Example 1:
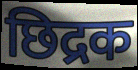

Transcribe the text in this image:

छिद्रक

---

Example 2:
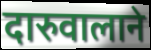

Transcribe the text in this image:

दारुवालाने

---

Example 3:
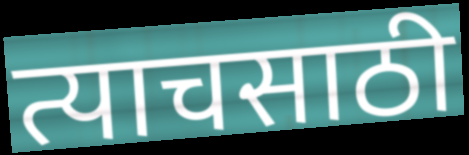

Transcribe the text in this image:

त्याचसाठी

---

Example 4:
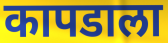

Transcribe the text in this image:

कापडाला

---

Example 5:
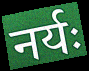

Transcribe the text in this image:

नर्यः